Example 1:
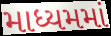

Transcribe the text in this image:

માધ્યમમાં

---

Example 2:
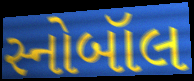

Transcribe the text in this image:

સ્નોબૉલ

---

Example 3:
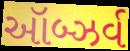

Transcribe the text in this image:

ઑબ્ઝર્વ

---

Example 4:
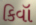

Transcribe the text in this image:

કિવૉ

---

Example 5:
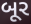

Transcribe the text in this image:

બૂર